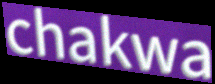
chakwa